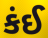
કંઈ